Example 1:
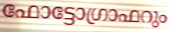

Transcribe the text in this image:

ഫോട്ടോഗ്രാഫറും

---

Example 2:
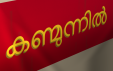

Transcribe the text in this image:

കണ്മുന്നിൽ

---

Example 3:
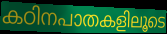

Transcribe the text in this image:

കഠിനപാതകളിലൂടെ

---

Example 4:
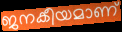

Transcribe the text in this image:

ജനകീയമാണ്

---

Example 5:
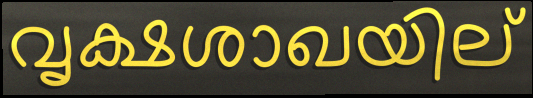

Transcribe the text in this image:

വൃക്ഷശാഖയില്